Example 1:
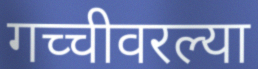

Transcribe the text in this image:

गच्चीवरल्या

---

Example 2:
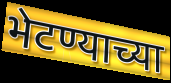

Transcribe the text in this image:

भेटण्याच्या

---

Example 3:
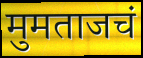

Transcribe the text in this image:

मुमताजचं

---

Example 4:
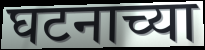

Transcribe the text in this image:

घटनाच्या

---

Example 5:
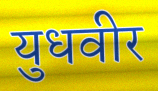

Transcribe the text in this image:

युधवीर